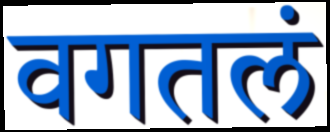
वगतलं